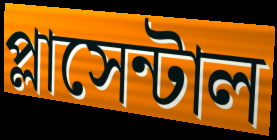
প্লাসেন্টাল